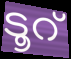
ടൂറ്